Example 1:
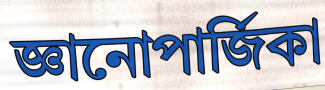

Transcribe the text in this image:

জ্ঞানোপার্জিকা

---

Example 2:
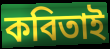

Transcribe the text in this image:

কবিতাই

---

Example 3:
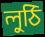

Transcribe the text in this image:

লুঠি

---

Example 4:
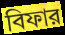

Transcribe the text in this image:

বিফার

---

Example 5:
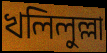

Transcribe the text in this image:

খলিলুল্লা